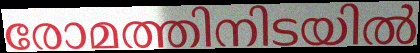
രോമത്തിനിടയിൽ